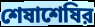
শেষাশেষির